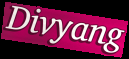
Divyang